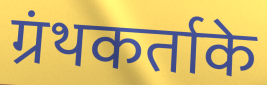
ग्रंथकर्ताके